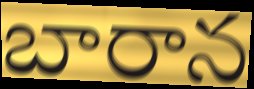
బారాన